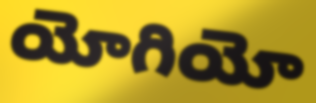
యోగియో